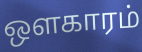
ஔகாரம்